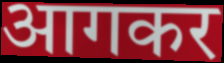
आगकर